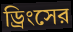
ড্রিংসের